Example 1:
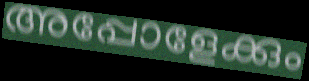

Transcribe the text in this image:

അപ്പോളേക്കും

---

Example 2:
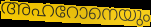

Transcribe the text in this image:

അഹറോനെയും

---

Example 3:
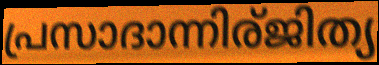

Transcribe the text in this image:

പ്രസാദാന്നിര്ജിത്യ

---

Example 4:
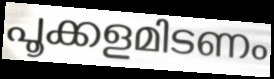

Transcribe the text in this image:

പൂക്കളമിടണം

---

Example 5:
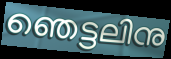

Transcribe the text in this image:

ഞെട്ടലിനു